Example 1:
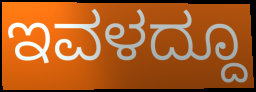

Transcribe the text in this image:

ಇವಳದ್ದೂ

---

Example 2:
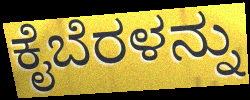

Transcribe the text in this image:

ಕೈಬೆರಳನ್ನು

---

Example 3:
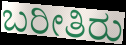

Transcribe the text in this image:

ಬರೀತಿರು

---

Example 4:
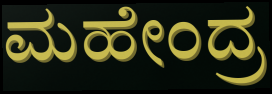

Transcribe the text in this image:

ಮಹೇಂದ್ರ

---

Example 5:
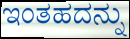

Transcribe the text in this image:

ಇಂತಹದನ್ನು